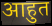
आहुत